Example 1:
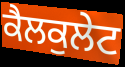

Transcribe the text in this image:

ਕੈਲਕੁਲੇਟ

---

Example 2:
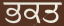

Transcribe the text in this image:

ਭਕਤ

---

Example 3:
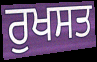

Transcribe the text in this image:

ਰੁਖਸਤ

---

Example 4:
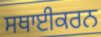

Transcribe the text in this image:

ਸਥਾਈਕਰਨ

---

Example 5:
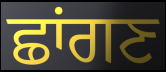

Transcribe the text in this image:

ਛਾਂਗਣ